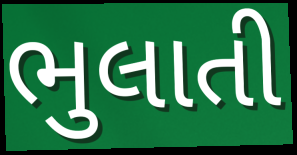
ભુલાતી